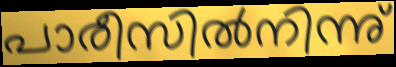
പാരീസിൽനിന്നു്